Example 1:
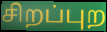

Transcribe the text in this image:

சிறப்புற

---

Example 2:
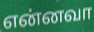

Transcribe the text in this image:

என்னவா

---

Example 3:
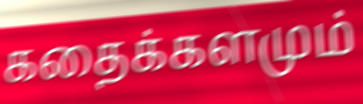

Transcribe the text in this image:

கதைக்களமும்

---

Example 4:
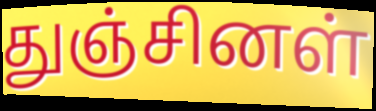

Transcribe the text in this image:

துஞ்சினள்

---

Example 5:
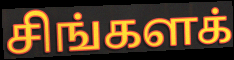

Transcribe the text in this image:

சிங்களக்